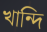
খান্দি